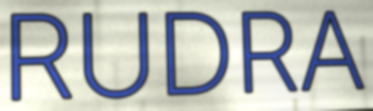
RUDRA